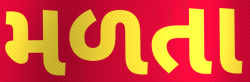
મળતા